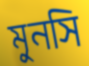
মুনসি